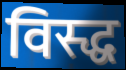
विस्द्ध